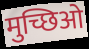
मुच्छिओ